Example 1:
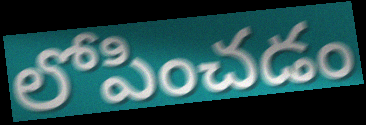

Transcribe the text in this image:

లోపించడం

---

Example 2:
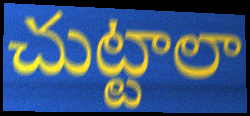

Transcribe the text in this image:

చుట్టాలా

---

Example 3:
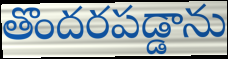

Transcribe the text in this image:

తొందరపడ్డాను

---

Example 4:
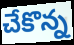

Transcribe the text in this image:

చేకొన్న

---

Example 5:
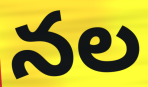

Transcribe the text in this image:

నల